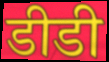
डीडी